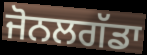
ਜੋਨਲਗੱਡਾ